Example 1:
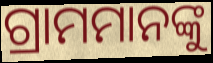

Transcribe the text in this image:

ଗ୍ରାମମାନଙ୍କୁ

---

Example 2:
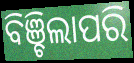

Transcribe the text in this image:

ବିଞ୍ଚିଲାପରି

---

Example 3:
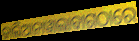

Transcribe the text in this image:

ଜାଲିଆନାୱାଲାବାଗଠାରେ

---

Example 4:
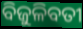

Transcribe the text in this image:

ବିଜୁଳିବତୀ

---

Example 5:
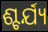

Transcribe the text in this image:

ଶ୍ଚର୍ଯ୍ୟ